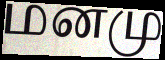
மனமு